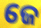
ଜେ